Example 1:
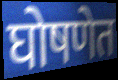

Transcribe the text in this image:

घोषणेत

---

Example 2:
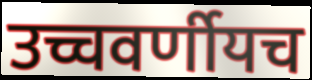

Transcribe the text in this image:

उच्चवर्णीयच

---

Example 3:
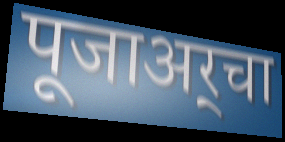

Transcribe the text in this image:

पूजाअर्चा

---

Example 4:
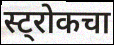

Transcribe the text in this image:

स्ट्रोकचा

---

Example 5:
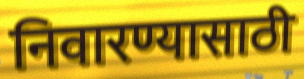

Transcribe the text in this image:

निवारण्यासाठी